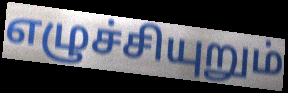
எழுச்சியுறும்